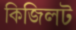
কিজিলট